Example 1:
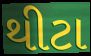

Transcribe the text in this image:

થીટા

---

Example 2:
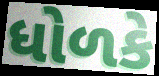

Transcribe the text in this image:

ધોળકે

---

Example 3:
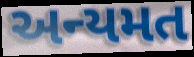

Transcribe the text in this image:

અન્યમત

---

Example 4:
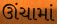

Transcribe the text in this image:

ઊંચામાં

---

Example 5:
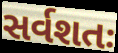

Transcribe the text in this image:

સર્વશતઃ